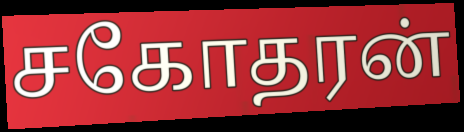
சகோதரன்